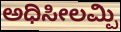
ಅಧಿಸೀಲಮ್ಪಿ